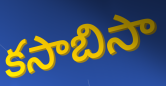
కసాబిసా